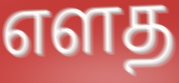
எளத